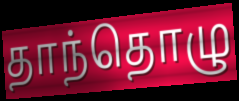
தாந்தொழு